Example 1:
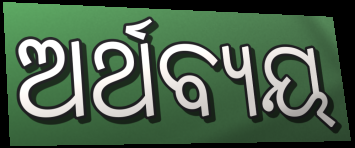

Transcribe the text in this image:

ଅର୍ଥବ୍ୟୟ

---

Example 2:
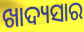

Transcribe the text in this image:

ଖାଦ୍ୟସାର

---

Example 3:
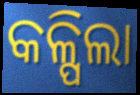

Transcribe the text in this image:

କଳ୍ପିଲା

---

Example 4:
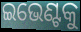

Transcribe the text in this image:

ଇଭେଣ୍ଟକୁ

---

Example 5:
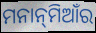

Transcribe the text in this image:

ମନାନ୍‌ମିଆଁର